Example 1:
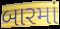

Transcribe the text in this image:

બારમાં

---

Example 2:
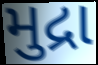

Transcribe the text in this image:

મુદ્રા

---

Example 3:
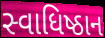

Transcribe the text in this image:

સ્વાધિષ્ઠાન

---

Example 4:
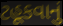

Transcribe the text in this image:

ટહૂકવાનું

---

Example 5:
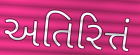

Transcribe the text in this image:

અતિરિત્તં